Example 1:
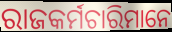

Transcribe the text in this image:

ରାଜକର୍ମଚାରିମାନେ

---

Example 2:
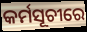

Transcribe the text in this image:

କର୍ମସୂଚୀରେ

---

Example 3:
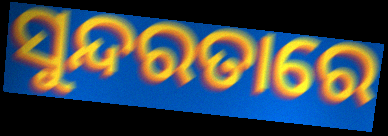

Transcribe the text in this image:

ସୁନ୍ଦରତାରେ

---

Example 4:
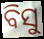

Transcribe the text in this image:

ବିସୁ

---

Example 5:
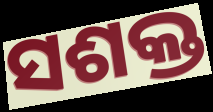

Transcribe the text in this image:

ସଶକ୍ତ